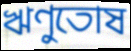
ঋণুতোষ